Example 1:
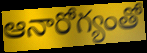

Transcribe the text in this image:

ఆనారోగ్యంతో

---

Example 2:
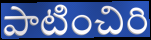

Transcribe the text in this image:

పాటించిరి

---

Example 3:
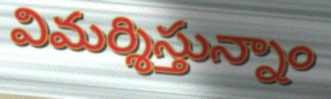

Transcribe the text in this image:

విమర్శిస్తున్నాం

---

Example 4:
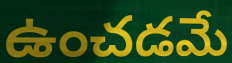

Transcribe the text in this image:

ఉంచడమే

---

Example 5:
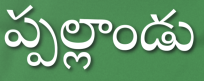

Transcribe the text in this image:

ప్పల్లాండు